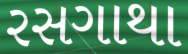
રસગાથા